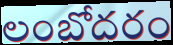
లంబోదరం